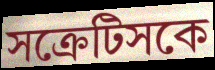
সক্রেটিসকে